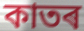
কাতৰ